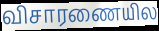
விசாரணையில